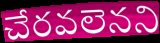
చేరవలెనని